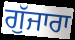
ਗੁੱਜਾਰਾ